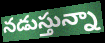
నడుస్తున్నా